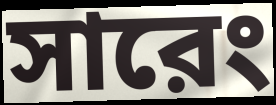
সারেং